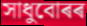
সাধুবোৰৰ